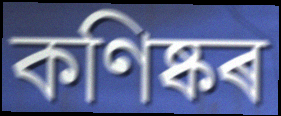
কণিষ্কৰ